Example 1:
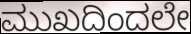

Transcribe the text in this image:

ಮುಖದಿಂದಲೇ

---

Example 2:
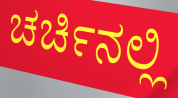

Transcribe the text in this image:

ಚರ್ಚಿನಲ್ಲಿ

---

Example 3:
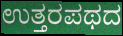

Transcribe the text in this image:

ಉತ್ತರಪಥದ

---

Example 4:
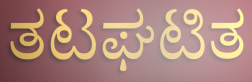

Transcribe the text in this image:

ತಟಘಟಿತ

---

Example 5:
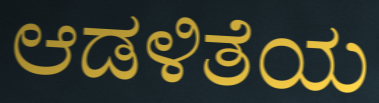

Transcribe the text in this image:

ಆಡಳಿತೆಯ